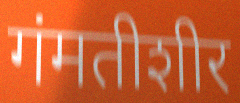
गंमतीशीर